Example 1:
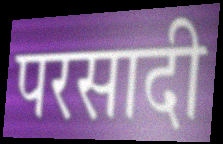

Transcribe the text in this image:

परसादी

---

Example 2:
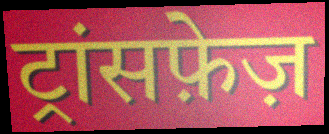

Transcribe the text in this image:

ट्रांसफ़ेज़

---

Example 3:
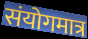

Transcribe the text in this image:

संयोगमात्र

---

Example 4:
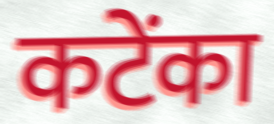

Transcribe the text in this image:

कटेंका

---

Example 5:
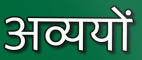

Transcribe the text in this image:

अव्ययों